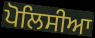
ਪੋਲਿਸੀਆ